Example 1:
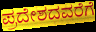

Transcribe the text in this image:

ಪ್ರದೇಶದವರೆಗೆ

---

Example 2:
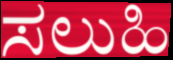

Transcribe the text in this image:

ಸಲುಹಿ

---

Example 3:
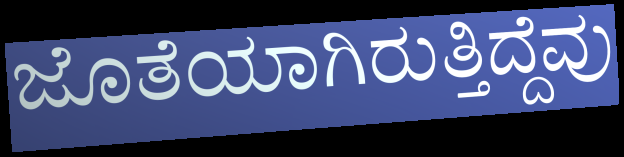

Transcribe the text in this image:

ಜೊತೆಯಾಗಿರುತ್ತಿದ್ದೆವು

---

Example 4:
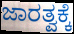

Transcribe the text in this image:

ಜಾರತ್ವಕ್ಕೆ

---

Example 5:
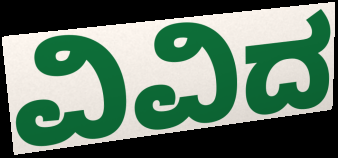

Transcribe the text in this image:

ವಿವಿದ